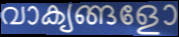
വാക്യങ്ങളോ